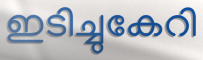
ഇടിച്ചുകേറി